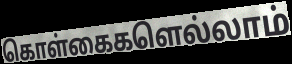
கொள்கைகளெல்லாம்